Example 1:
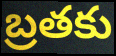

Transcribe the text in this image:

బ్రతకు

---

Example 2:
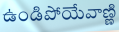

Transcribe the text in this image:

ఉండిపోయేవాణ్ణి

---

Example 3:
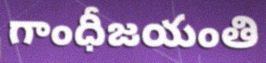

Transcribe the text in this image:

గాంధీజయంతి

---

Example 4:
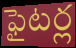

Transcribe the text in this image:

ఫైటర్ల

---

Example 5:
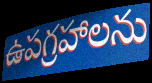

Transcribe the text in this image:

ఉపగ్రహాలను